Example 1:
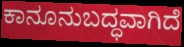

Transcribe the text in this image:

ಕಾನೂನುಬದ್ಧವಾಗಿದೆ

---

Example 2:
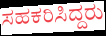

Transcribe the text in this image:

ಸಹಕರಿಸಿದ್ದರು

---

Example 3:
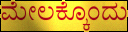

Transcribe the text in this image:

ಮೇಲಕ್ಕೊಂದು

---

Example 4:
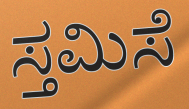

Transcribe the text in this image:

ಸ್ತಮಿಸೆ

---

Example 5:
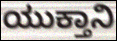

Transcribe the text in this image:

ಯುಕ್ತಾನಿ